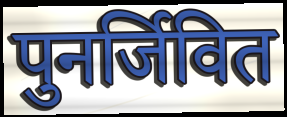
पुनर्जिवित